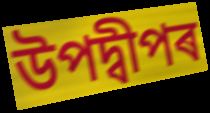
উপদ্বীপৰ